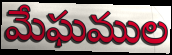
మేఘముల